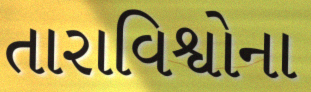
તારાવિશ્વોના